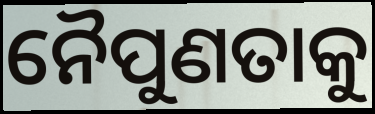
ନୈପୁଣତାକୁ